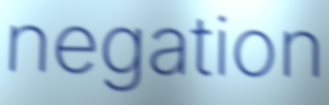
negation